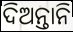
ଦିଅନ୍ତାନି